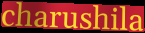
charushila